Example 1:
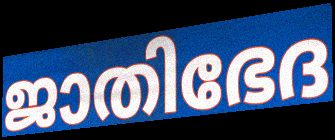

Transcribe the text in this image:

ജാതിഭേദ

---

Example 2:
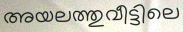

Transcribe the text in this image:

അയലത്തുവീട്ടിലെ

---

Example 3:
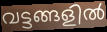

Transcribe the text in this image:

വട്ടങ്ങളിൽ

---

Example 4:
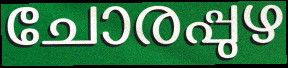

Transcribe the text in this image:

ചോരപ്പുഴ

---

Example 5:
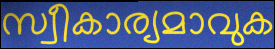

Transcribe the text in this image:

സ്വീകാര്യമാവുക